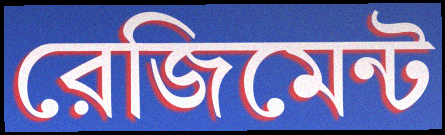
রেজিমেন্ট